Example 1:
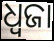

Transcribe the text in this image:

ଧ୍ୱଜା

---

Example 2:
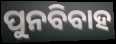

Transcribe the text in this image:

ପୁନବିବାହ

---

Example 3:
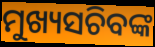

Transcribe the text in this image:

ମୁଖ୍ୟସଚିବଙ୍କ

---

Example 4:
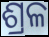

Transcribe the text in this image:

ଶ୍ରଳ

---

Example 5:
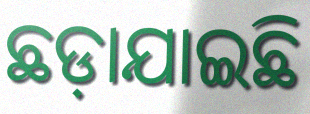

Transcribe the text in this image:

ଛଡ଼ାଯାଇଛି